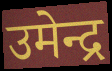
उमेन्द्र